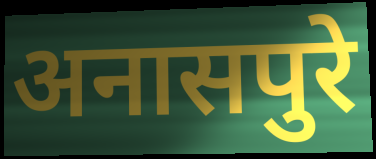
अनासपुरे